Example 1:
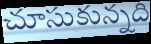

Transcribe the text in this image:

చూసుకున్నది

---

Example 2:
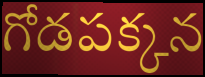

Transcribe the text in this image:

గోడపక్కన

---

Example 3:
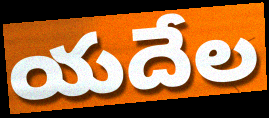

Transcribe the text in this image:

యదేల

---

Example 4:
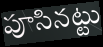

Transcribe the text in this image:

పూసినట్టు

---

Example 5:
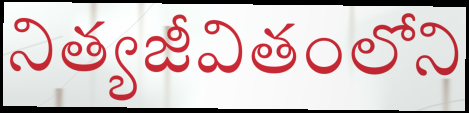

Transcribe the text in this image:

నిత్యజీవితంలోని